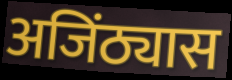
अजिंठ्यास